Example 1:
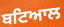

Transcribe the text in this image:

ਬਟਿਆਲ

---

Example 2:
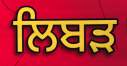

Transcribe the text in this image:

ਲਿਬੜ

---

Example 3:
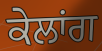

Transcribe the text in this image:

ਕੇਲਾਂਗ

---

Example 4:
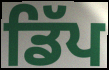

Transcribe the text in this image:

ਡਿੱਪ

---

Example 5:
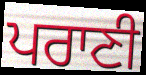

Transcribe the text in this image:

ਪਰਾਣੀ